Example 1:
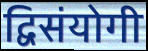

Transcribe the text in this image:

द्विसंयोगी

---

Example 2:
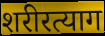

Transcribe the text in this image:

शरीरत्याग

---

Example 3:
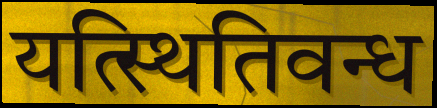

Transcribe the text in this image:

यत्स्थितिवन्ध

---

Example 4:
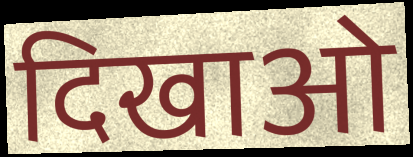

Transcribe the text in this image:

दिखाओ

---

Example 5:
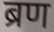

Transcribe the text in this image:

ब्रण